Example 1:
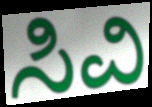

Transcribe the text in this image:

ಸಿವಿ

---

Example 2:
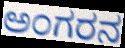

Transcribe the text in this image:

ಅಂಗರನ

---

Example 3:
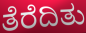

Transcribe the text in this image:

ತೆರೆದಿತು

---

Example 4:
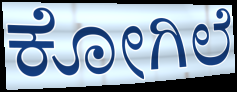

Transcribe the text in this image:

ಕೋಗಿಲೆ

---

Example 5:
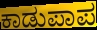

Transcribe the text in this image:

ಕಾಡುಪಾಪ